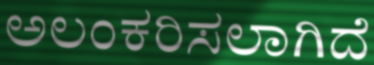
ಅಲಂಕರಿಸಲಾಗಿದೆ